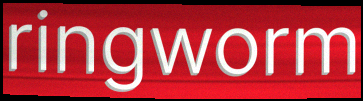
ringworm